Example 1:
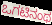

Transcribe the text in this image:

ಒಗಟಿನಂಥ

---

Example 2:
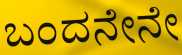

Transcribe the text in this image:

ಬಂದನೇನೇ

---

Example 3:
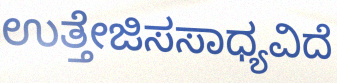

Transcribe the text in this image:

ಉತ್ತೇಜಿಸಸಾಧ್ಯವಿದೆ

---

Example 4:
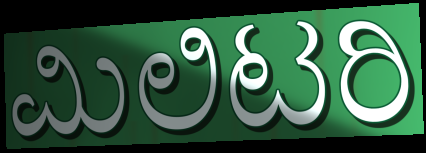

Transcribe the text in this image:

ಮಿಲಿಟರಿ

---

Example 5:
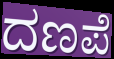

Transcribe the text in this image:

ದಣಪೆ